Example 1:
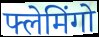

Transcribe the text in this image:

फ्लेमिंगो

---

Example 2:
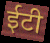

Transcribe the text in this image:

ईटी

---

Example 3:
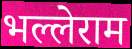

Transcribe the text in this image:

भल्लेराम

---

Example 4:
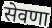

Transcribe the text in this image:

सेवणा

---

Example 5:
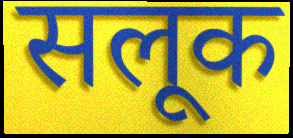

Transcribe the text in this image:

सलूक